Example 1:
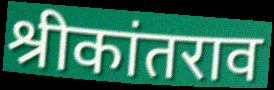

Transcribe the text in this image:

श्रीकांतराव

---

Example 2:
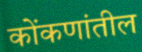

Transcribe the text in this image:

कोंकणांतील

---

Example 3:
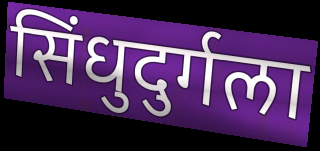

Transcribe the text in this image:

सिंधुदुर्गला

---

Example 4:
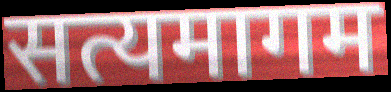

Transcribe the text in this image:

सत्यमागम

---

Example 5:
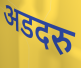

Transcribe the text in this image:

अडदरु